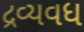
દ્રવ્યવધ